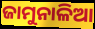
ଜାମୁନାଳିଆ